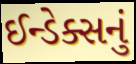
ઈન્ડેક્સનું